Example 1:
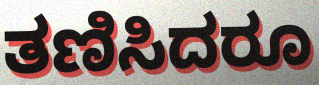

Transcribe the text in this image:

ತಣಿಸಿದರೂ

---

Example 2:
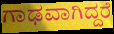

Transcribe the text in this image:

ಗಾಢವಾಗಿದ್ದರೆ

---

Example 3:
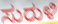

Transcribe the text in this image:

ಸುರುಳಿ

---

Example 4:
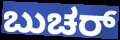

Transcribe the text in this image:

ಬುಚರ್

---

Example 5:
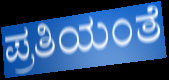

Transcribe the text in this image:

ಪ್ರತಿಯಂತೆ